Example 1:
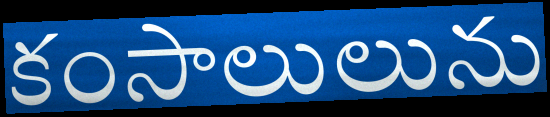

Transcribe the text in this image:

కంసాలులును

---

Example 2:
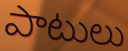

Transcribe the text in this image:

పాటులు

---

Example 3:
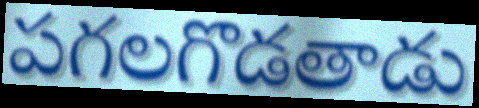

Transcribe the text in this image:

పగలగొడతాడు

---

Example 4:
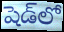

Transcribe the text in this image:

షెడ్‌లో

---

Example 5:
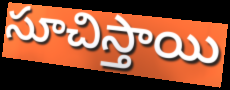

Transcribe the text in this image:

సూచిస్తాయి